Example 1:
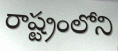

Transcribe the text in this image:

రాష్ట్రంలోని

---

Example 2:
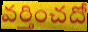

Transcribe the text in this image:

వర్తించదో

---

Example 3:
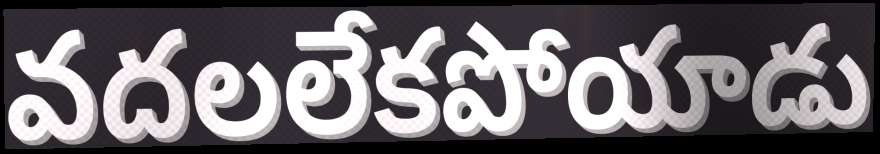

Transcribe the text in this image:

వదలలేకపోయాడు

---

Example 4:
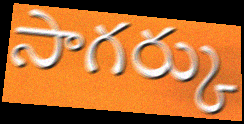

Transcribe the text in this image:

సాగర్కు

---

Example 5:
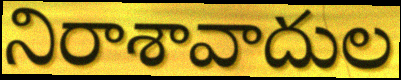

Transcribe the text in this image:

నిరాశావాదుల